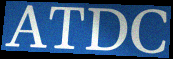
ATDC